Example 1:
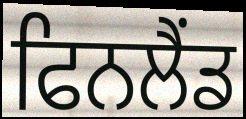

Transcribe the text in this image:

ਫਿਨਲੈਂਡ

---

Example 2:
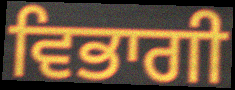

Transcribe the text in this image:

ਵਿਭਾਗੀ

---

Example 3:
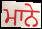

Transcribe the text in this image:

ਮਾਨੇ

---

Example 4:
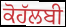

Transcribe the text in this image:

ਕੋਹੱਲਬੀ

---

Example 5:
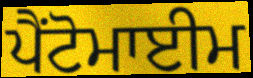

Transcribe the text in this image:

ਪੈਂਟੋਮਾਈਮ